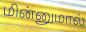
மின்னுமால்